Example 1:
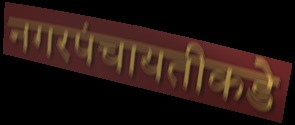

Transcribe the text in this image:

नगरपंचायतीकडे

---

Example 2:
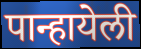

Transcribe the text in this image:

पान्हायेली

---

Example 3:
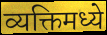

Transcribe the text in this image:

व्यक्तिमध्ये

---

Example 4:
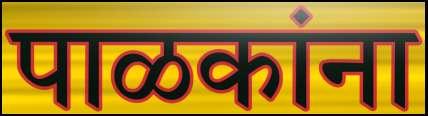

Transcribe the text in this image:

पाळकांना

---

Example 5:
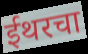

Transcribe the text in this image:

ईथरचा